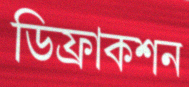
ডিফ্রাকশন